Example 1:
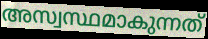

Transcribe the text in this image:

അസ്വസ്ഥമാകുന്നത്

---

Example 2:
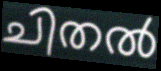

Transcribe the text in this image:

ചിതൽ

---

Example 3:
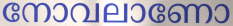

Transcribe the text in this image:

നോവലാണോ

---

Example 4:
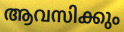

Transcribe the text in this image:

ആവസിക്കും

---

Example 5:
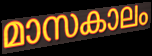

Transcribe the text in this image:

മാസകാലം